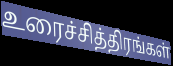
உரைச்சித்திரங்கள்